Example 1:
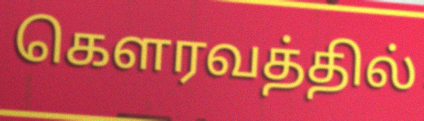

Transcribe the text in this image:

கௌரவத்தில்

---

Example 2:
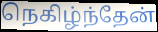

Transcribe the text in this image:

நெகிழ்ந்தேன்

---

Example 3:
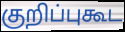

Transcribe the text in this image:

குறிப்புகூட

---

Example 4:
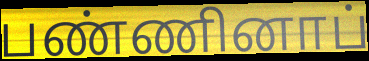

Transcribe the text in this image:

பண்ணினாப்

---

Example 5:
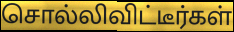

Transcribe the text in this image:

சொல்லிவிட்டீர்கள்